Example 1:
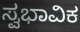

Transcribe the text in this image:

ಸ್ವಭಾವಿಕ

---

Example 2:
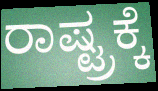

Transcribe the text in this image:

ರಾಷ್ಟ್ರಕ್ಕೆ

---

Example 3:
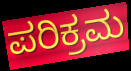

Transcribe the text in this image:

ಪರಿಕ್ರಮ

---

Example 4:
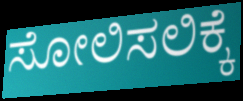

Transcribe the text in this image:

ಸೋಲಿಸಲಿಕ್ಕೆ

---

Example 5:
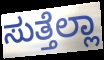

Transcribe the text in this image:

ಸುತ್ತೆಲ್ಲಾ